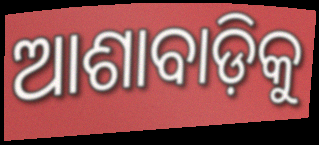
ଆଶାବାଡ଼ିକୁ